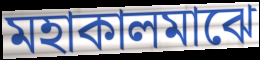
মহাকালমাঝে